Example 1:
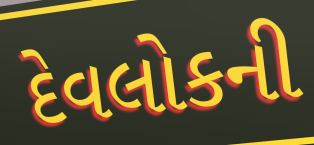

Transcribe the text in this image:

દેવલોકની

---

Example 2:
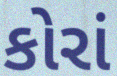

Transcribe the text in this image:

કોરાં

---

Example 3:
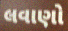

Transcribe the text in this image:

લવાણો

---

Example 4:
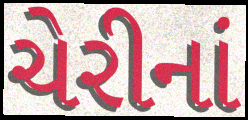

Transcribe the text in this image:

ચેરીનાં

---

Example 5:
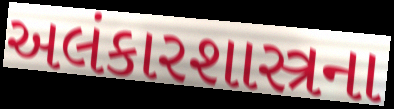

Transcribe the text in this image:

અલંકારશાસ્ત્રના